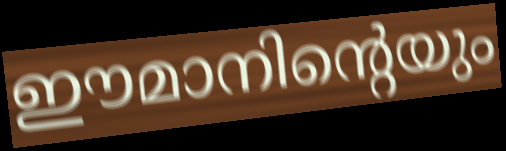
ഈമാനിന്റെയും